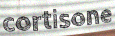
cortisone